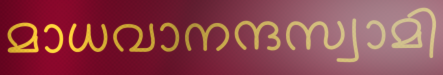
മാധവാനന്ദസ്വാമി